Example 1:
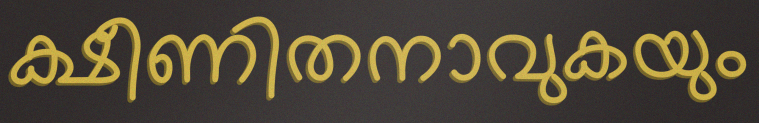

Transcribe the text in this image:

ക്ഷീണിതനാവുകയും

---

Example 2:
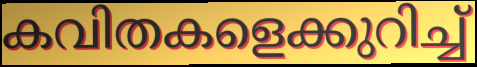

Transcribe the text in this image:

കവിതകളെക്കുറിച്ച്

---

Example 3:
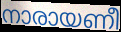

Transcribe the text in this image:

നാരായണീ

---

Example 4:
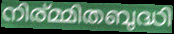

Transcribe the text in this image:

നിര്മ്മിതബുദ്ധി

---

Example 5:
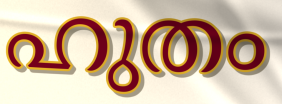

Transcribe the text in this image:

ഹുതം